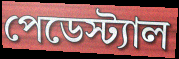
পেডেস্ট্যাল